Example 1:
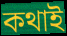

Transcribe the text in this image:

কথাই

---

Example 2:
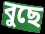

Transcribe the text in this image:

বুছে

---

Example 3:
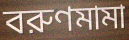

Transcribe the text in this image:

বরুণমামা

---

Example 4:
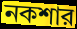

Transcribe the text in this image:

নকশার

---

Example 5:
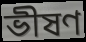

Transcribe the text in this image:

ভীষণ